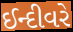
ઈન્દીવરે